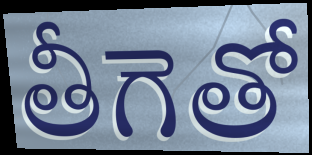
తీగెతో